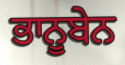
ਭਾਨੂਬੇਨ